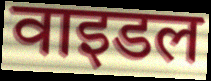
वाइडल